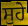
ਸੁਹੇ